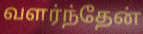
வளர்ந்தேன்